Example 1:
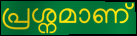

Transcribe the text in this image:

പ്രശ്നമാണ്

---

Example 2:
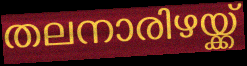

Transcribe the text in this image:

തലനാരിഴയ്ക്ക്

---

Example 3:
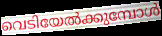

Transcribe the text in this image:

വെടിയേൽക്കുമ്പോൾ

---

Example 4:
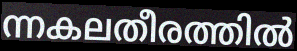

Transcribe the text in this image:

ന്നകലതീരത്തിൽ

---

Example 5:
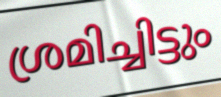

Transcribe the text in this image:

ശ്രമിച്ചിട്ടും